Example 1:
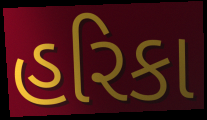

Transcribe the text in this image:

હરિકા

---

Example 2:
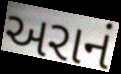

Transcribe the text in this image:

અરાનં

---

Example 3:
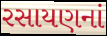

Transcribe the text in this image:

રસાયણનાં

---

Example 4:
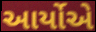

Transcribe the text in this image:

આર્યોએ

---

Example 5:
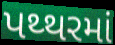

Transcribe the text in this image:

પથ્થરમાં